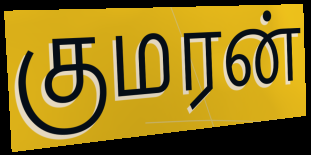
குமரன்